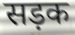
सड़क